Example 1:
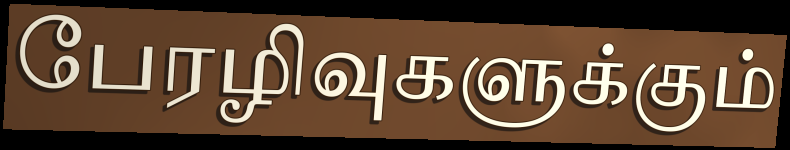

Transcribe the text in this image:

பேரழிவுகளுக்கும்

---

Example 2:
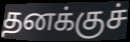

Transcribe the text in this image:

தனக்குச்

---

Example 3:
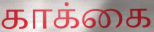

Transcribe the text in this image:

காக்கை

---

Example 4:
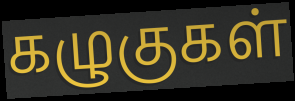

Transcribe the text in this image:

கழுகுகள்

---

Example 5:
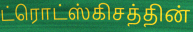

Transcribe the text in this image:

ட்ரொட்ஸ்கிசத்தின்